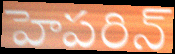
హెపరిన్